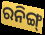
ରନିଙ୍ଗ୍